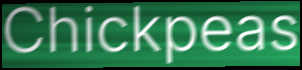
Chickpeas